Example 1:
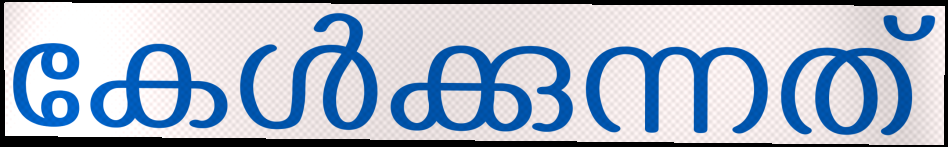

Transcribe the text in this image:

കേൾക്കുന്നത്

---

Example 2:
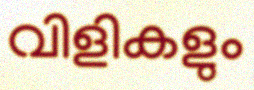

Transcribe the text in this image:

വിളികളും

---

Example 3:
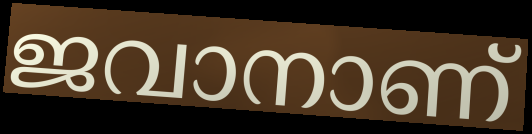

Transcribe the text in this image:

ജവാനാണ്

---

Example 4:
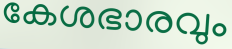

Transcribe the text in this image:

കേശഭാരവും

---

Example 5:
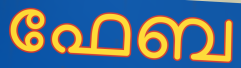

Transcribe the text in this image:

ഫേബ